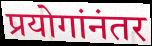
प्रयोगांनंतर